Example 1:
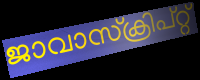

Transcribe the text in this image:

ജാവാസ്ക്രിപ്റ്റ്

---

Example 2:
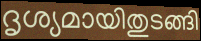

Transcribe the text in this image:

ദൃശ്യമായിതുടങ്ങി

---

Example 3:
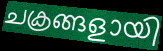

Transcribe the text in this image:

ചക്രങ്ങളായി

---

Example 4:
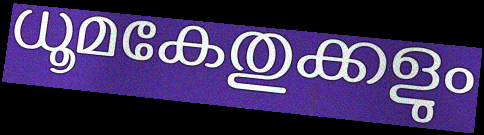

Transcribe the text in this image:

ധൂമകേതുക്കളും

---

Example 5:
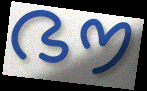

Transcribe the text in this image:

ഭൗ